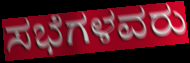
ಸಭೆಗಳವರು